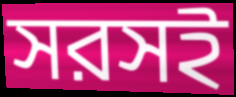
সরসই